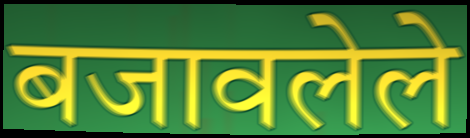
बजावलेले